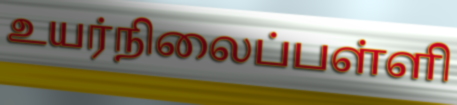
உயர்நிலைப்பள்ளி